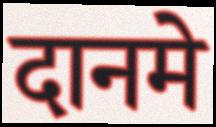
दानमे